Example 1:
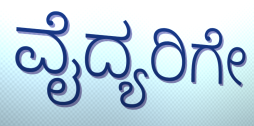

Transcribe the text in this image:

ವೈದ್ಯರಿಗೇ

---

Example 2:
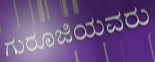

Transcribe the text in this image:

ಗುರೂಜಿಯವರು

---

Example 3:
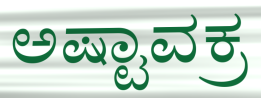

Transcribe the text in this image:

ಅಷ್ಟಾವಕ್ರ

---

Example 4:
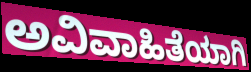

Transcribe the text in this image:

ಅವಿವಾಹಿತೆಯಾಗಿ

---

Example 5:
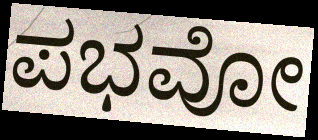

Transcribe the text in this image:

ಪಭವೋ